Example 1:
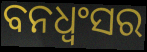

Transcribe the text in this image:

ବନଧ୍ଵଂସର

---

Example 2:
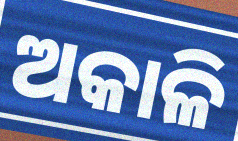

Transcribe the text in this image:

ଅକାଳି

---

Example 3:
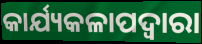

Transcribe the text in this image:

କାର୍ଯ୍ୟକଳାପଦ୍ବାରା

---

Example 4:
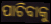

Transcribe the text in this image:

ପାଚିବାକୁ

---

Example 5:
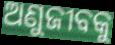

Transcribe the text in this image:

ଅଣୁଜୀବକୁ